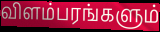
விளம்பரங்களும்